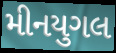
મીનયુગલ